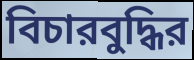
বিচারবুদ্ধির